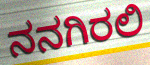
ನನಗಿರಲಿ